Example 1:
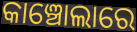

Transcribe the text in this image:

କାଞ୍ଚୋଲାରେ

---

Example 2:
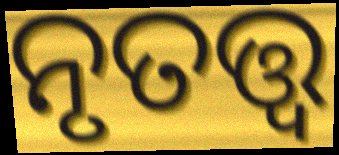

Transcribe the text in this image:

ନୃତତ୍ତ୍ଵ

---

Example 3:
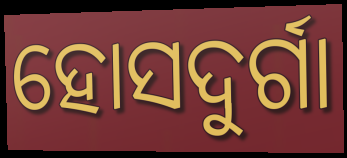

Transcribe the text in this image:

ହୋସଦୁର୍ଗା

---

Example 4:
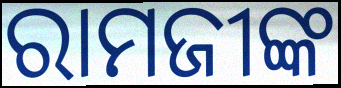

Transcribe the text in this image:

ରାମଜୀଙ୍କ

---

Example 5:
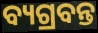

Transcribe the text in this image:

ବ୍ୟଗ୍ରବନ୍ତ